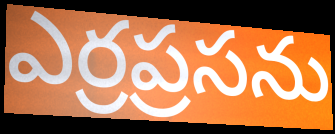
ఎర్రప్రసను